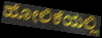
ಹೋಲಿಕೆಯಲ್ಲಿ